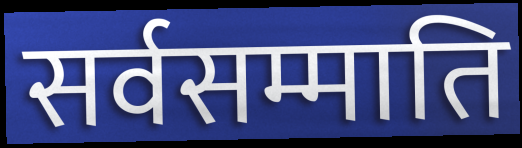
सर्वसम्माति